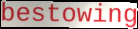
bestowing